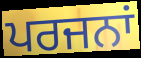
ਪਰਜਨਾਂ